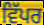
ਵਿੱਪਰ